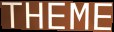
THEME